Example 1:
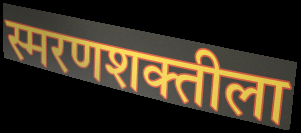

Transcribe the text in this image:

स्मरणशक्तीला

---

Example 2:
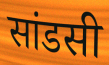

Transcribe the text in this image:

सांडसी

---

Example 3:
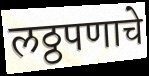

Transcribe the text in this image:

लठ्ठपणाचे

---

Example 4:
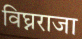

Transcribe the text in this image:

विघ्नराजा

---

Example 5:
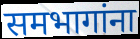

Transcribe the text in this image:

समभागांना